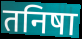
तनिषा